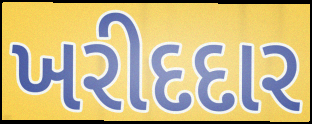
ખરીદદાર